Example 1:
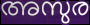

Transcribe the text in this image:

അസുര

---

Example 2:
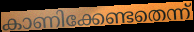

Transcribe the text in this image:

കാണിക്കേണ്ടതെന്ന്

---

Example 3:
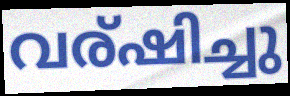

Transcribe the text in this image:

വര്ഷിച്ചു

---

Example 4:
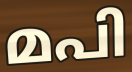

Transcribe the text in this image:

മപി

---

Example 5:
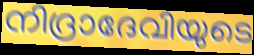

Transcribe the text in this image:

നിദ്രാദേവിയുടെ